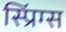
स्प्रिंग्स